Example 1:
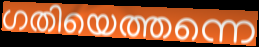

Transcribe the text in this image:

ഗതിയെത്തന്നെ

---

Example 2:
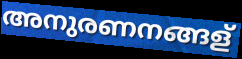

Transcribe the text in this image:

അനുരണനങ്ങള്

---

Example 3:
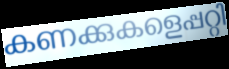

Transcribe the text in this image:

കണക്കുകളെപ്പറ്റി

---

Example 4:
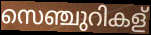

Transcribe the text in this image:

സെഞ്ചുറികള്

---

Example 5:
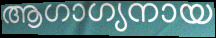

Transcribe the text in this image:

ആഗാഗ്യനായ